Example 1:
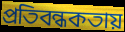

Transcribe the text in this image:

প্রতিবন্ধকতায়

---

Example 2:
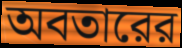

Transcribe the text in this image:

অবতারের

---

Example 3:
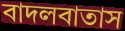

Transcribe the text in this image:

বাদলবাতাস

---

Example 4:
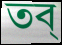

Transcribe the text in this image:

তব্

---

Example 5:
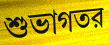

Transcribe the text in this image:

শুভাগতর